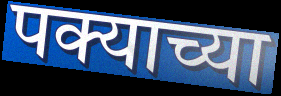
पक्याच्या